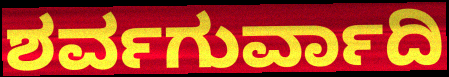
ಶರ್ವಗುರ್ವಾದಿ